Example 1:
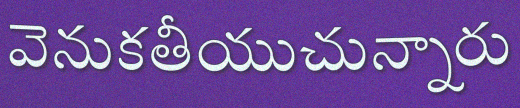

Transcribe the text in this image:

వెనుకతీయుచున్నారు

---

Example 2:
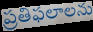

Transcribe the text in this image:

ప్రతిఫలాలను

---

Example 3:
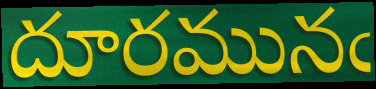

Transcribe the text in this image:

దూరమునఁ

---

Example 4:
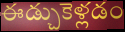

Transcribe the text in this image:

ఈడ్చుకెళ్లడం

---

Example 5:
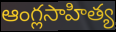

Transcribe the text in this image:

ఆంగ్లసాహిత్య